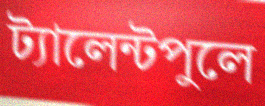
ট্যালেন্টপুলে